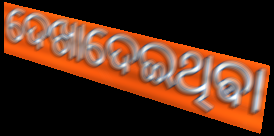
ଦେଖାଦେଇଥିଵା